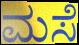
ಮಸೆ